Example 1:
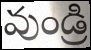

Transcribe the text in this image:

వుండ్రి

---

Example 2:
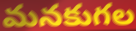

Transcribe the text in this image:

మనకుగల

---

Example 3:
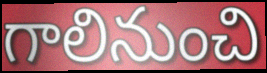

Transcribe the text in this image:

గాలినుంచి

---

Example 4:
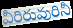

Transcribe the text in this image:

వీరిరువురినీ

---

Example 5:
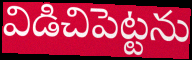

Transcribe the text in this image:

విడిచిపెట్టను